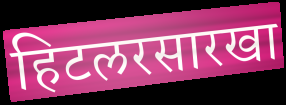
हिटलरसारखा